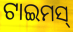
ଟାଇମସ୍